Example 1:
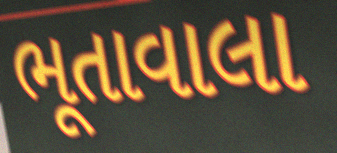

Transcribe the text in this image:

ભૂતાવાલા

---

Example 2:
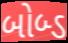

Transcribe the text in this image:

બોબ્ડ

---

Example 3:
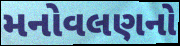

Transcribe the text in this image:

મનોવલણનો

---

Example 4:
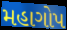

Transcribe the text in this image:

મહાગોપ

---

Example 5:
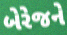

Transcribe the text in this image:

બેરેજને